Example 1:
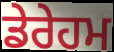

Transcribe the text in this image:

ਡੇਰੇਹਮ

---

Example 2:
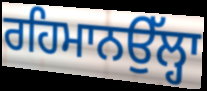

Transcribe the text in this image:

ਰਹਿਮਾਨਉੱਲ੍ਹਾ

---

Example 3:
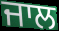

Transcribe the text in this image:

ਜਾਲ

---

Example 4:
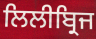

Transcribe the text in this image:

ਲਿਲੀਬ੍ਰਿਜ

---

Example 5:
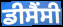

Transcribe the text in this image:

ਡੀਸੈਂਸੀ